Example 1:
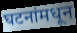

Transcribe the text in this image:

घटनांमधून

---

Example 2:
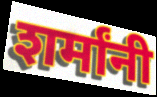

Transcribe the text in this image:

शर्मांनी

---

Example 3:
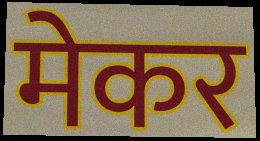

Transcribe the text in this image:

मेकर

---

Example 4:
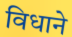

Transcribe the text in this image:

विधाने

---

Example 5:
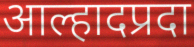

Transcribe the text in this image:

आल्हादप्रदा